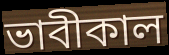
ভাবীকাল